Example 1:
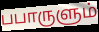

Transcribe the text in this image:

பபாருளும்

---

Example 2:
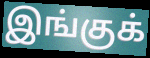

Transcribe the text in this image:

இங்குக்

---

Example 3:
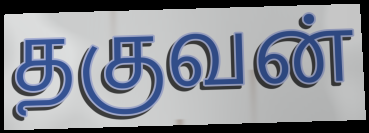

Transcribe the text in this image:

தகுவன்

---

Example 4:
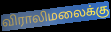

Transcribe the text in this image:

விராலிமலைக்கு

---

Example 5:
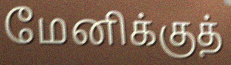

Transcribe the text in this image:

மேனிக்குத்